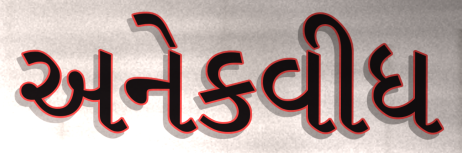
અનેકવીધ